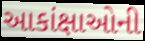
આકાંક્ષાઓની